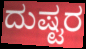
ದುಷ್ಟರ